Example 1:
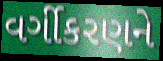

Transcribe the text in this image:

વર્ગીકરણને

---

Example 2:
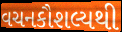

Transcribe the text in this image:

વચનકૌશલ્યથી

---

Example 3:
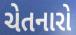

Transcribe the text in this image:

ચેતનારો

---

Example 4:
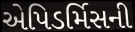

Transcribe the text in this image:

એપિડર્મિસની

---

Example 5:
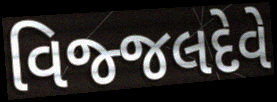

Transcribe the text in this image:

વિજ્જલદેવે